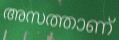
അസത്താണ്